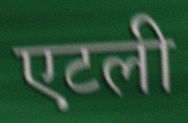
एटली